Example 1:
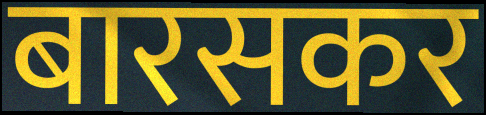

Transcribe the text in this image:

बारसकर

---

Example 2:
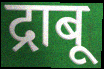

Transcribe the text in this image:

द्राबू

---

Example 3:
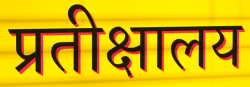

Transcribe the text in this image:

प्रतीक्षालय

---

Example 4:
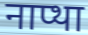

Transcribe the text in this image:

नाप्था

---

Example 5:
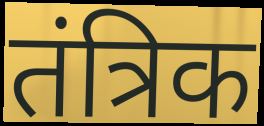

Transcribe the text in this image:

तंत्रिक